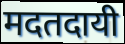
मदतदायी